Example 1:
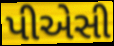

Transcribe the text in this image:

પીએસી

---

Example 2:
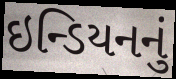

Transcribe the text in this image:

ઇન્ડિયનનું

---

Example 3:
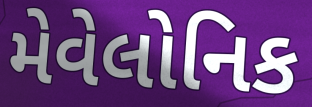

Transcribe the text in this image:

મેવેલોનિક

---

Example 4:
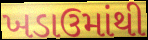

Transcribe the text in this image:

ખડાઉમાંથી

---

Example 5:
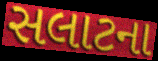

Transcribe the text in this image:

સલાટના